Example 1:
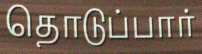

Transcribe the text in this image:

தொடுப்பார்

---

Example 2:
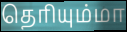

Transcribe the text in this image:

தெரியும்மா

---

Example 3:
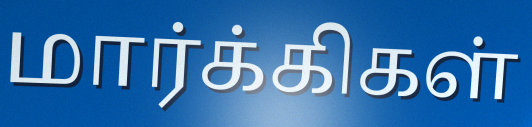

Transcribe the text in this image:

மார்க்கிகள்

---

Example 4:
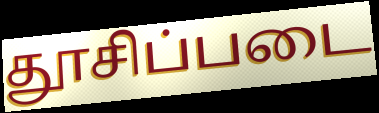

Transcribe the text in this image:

தூசிப்படை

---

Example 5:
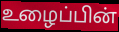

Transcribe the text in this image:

உழைப்பின்